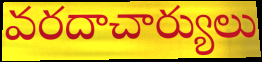
వరదాచార్యులు